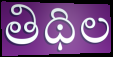
తిథిల